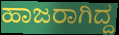
ಹಾಜರಾಗಿದ್ದ